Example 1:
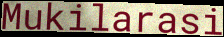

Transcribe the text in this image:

Mukilarasi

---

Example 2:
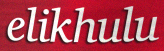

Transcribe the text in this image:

elikhulu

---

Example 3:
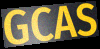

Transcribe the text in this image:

GCAS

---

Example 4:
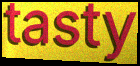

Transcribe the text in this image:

tasty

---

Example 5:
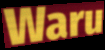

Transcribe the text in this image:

Waru